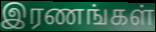
இரணங்கள்